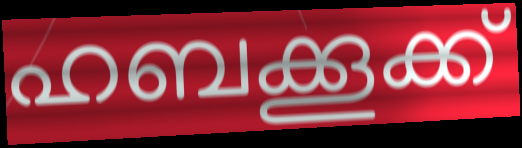
ഹബക്കൂക്ക്